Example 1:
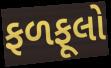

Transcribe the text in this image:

ફળફૂલો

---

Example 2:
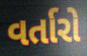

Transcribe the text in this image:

વર્તારો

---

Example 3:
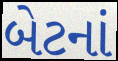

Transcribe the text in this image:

બેટનાં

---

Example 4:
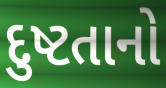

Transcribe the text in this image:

દુષ્ટતાનો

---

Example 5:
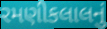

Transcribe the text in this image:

રમણીકલાલનું